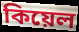
কিয়েল